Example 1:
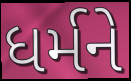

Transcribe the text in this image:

ધર્મને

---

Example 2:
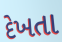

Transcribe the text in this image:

દેખતા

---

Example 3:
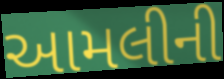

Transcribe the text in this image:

આમલીની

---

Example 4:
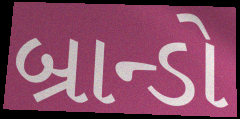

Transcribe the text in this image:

બ્રાન્ડો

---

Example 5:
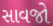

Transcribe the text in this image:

સાવજો